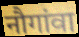
नौगांवा